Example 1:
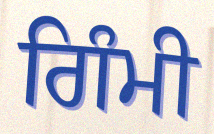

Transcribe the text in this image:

ਗਿੰਮੀ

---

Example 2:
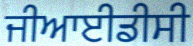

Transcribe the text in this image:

ਜੀਆਈਡੀਸੀ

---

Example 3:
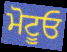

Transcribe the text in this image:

ਮੋਟੂਓ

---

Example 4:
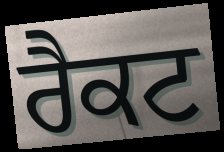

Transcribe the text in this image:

ਰੈਕਟ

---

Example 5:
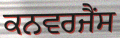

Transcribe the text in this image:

ਕਨਵਰਜੈਂਸ